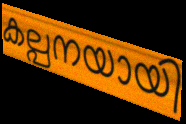
കല്പനയായി